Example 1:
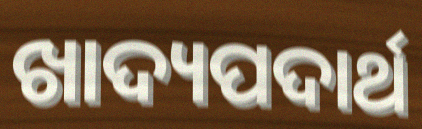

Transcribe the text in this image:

ଖାଦ୍ୟପଦାର୍ଥ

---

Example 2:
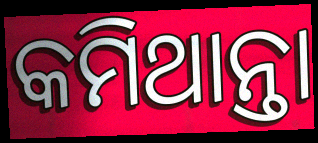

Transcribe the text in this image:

କମିଥାନ୍ତା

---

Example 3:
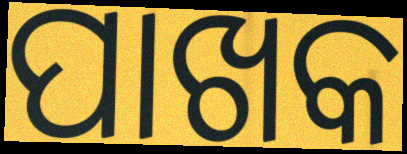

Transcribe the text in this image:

ପାଖକ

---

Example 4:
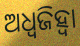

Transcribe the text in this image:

ଅଧ୍ୱଜିହ୍ବା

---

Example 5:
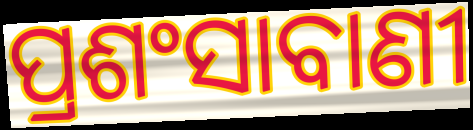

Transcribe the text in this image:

ପ୍ରଶଂସାବାଣୀ